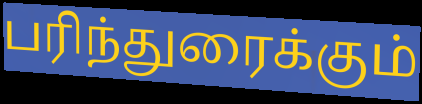
பரிந்துரைக்கும்